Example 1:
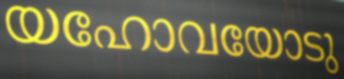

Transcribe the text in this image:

യഹോവയോടു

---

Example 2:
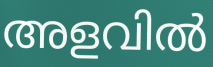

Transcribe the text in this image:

അളവിൽ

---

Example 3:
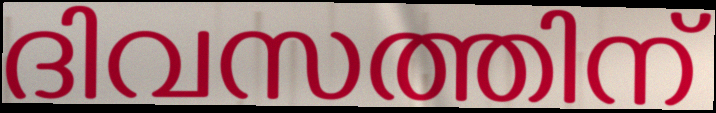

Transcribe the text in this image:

ദിവസത്തിന്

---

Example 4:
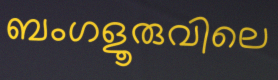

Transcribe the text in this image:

ബംഗളൂരുവിലെ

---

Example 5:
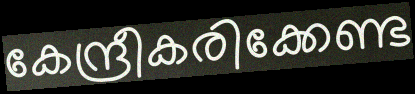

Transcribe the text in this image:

കേന്ദ്രീകരിക്കേണ്ട